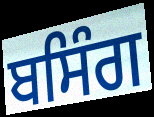
ਬਸਿੰਗ